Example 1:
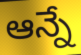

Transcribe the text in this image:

ఆన్నే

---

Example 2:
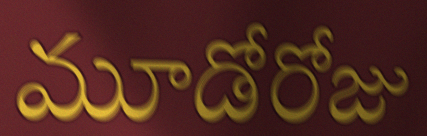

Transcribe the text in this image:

మూడోరోజు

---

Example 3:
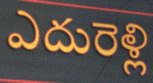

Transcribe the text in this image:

ఎదురెళ్లి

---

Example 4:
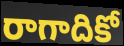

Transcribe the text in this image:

రాగాదికో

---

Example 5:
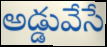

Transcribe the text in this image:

అడ్డువేసే